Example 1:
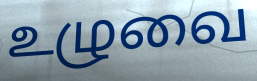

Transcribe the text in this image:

உழுவை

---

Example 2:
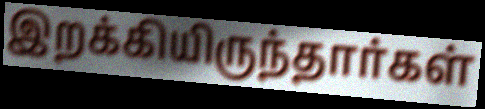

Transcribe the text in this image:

இறக்கியிருந்தார்கள்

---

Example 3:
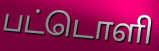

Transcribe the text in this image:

பட்டொளி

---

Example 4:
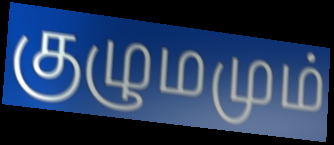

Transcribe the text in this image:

குழுமமும்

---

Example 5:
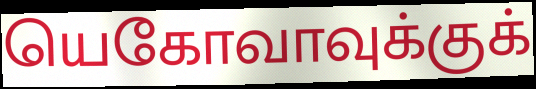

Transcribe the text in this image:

யெகோவாவுக்குக்